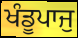
ਖੰਡੂਪਾਜੁ